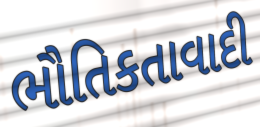
ભૌતિકતાવાદી